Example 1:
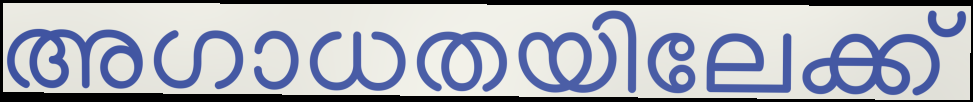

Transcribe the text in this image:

അഗാധതയിലേക്ക്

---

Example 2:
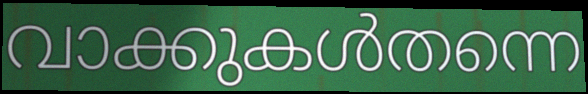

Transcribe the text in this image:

വാക്കുകൾതന്നെ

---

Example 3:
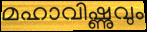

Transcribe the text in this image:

മഹാവിഷ്ണുവും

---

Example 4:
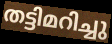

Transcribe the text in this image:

തട്ടിമറിച്ചു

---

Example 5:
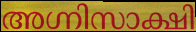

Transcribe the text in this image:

അഗ്നിസാക്ഷി